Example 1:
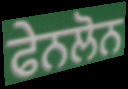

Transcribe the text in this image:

ਫੇਨਲੋਨ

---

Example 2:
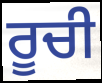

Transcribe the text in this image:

ਰੂਚੀ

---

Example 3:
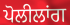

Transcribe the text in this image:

ਪੋਲੀਲਾਂਗ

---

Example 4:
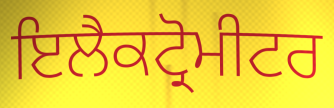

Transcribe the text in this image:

ਇਲੈਕਟ੍ਰੋਮੀਟਰ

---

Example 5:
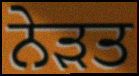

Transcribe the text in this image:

ਨੇੜਤ